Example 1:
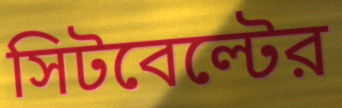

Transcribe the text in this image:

সিটবেল্টের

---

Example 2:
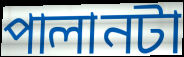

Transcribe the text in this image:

পালানটা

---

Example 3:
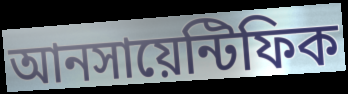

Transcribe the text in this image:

আনসায়েন্টিফিক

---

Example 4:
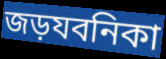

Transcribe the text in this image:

জড়যবনিকা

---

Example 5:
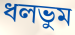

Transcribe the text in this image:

ধলভুম